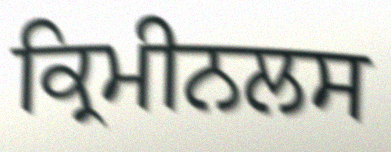
ਕ੍ਰਿਮੀਨਲਸ